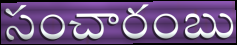
సంచారంబు